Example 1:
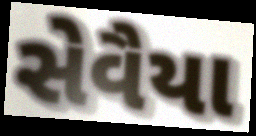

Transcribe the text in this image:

સેવૈયા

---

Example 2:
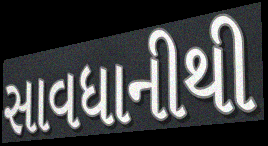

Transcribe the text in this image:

સાવધાનીથી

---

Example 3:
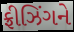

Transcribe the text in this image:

ફ્રીઝિંગને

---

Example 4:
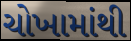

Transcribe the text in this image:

ચોખામાંથી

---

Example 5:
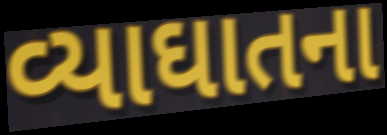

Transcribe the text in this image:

વ્યાઘાતના